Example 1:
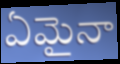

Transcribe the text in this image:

ఏమైనా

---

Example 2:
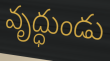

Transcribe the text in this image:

వృద్ధుండు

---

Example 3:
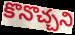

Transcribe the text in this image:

కొనొచ్చని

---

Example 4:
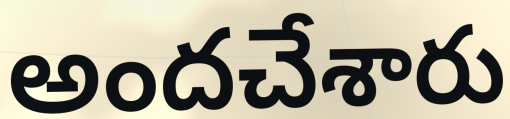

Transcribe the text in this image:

అందచేశారు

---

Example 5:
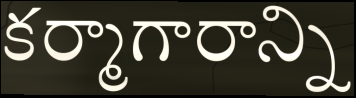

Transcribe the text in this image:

కర్మాగారాన్ని